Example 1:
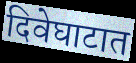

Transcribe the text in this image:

दिवेघाटात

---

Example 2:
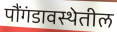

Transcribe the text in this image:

पौंगंडावस्थेतील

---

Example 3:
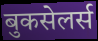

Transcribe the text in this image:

बुकसेलर्स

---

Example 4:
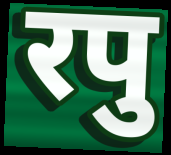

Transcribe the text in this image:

रपु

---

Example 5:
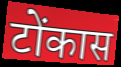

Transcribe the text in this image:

टोंकास